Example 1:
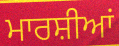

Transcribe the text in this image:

ਮਾਰਸ਼ੀਆਂ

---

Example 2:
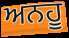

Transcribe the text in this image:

ਅਨਹੂ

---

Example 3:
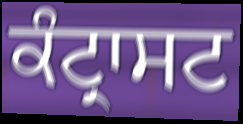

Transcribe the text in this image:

ਕੰਟ੍ਰਾਸਟ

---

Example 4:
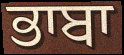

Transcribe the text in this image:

ਭਾਬਾ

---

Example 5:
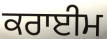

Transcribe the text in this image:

ਕਰਾਈਮ